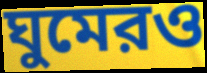
ঘুমেরও